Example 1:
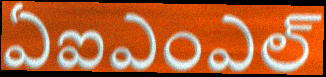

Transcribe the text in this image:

ఏఐఎంఎల్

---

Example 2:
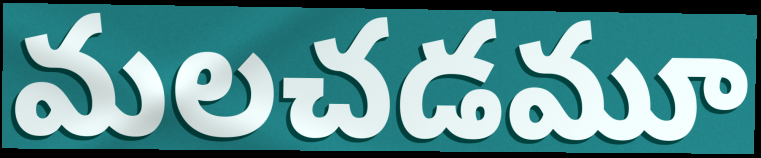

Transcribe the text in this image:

మలచడమూ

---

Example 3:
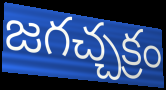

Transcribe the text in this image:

జగచ్చక్రం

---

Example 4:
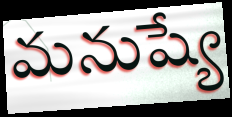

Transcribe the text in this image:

మనుష్యే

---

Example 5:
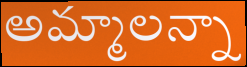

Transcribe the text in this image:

అమ్మాలన్నా